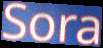
Sora